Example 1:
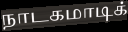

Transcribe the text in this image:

நாடகமாடிக்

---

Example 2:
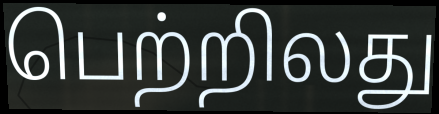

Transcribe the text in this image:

பெற்றிலது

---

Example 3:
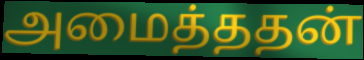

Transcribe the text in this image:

அமைத்ததன்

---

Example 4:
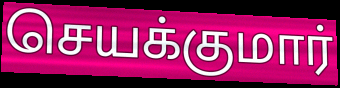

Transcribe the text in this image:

செயக்குமார்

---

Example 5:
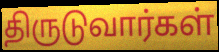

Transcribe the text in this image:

திருடுவார்கள்